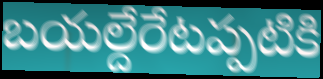
బయల్దేరేటప్పటికి